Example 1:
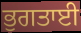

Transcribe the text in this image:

ਭੁਗਤਾਈ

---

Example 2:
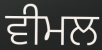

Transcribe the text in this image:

ਵੀਮਲ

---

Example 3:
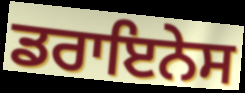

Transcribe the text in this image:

ਡਰਾਇਨੇਸ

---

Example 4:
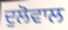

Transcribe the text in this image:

ਦੁਲੋਵਾਲ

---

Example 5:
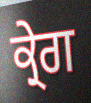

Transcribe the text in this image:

ਕ੍ਰੇਗ